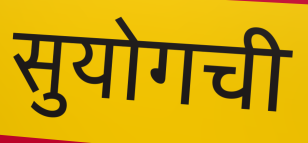
सुयोगची